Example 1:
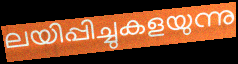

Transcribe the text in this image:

ലയിപ്പിച്ചുകളയുന്നു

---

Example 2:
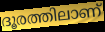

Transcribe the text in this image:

ദൂരത്തിലാണ്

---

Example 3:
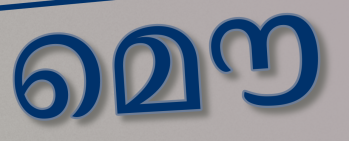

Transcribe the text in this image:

മൌ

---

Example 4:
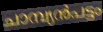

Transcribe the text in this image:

ചാമ്പ്യൻപട്ടം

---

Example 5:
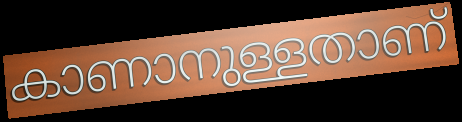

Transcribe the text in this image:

കാണാനുള്ളതാണ്